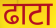
ढाटा